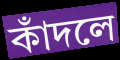
কাঁদলে